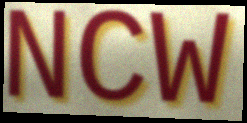
NCW